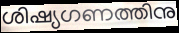
ശിഷ്യഗണത്തിനു